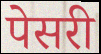
पेसरी